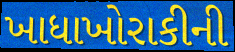
ખાધાખોરાકીની